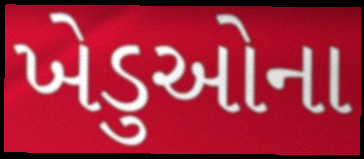
ખેડુઓના